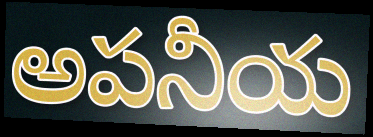
అపనీయ